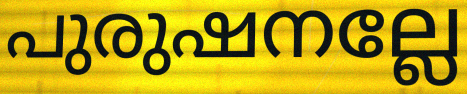
പുരുഷനല്ലേ